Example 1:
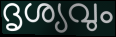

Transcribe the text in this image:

ദൃശ്യവും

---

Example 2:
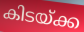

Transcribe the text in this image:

കിടയ്ക്ക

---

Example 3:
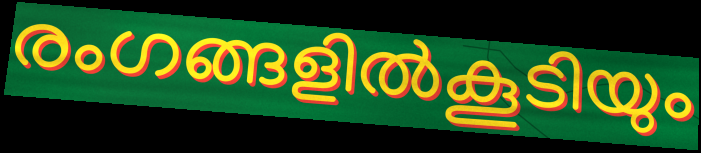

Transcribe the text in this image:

രംഗങ്ങളിൽകൂടിയും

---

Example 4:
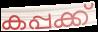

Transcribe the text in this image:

കപ്പക്ക്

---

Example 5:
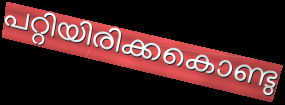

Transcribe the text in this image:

പറ്റിയിരിക്കകൊണ്ടു